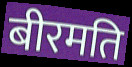
बीरमति